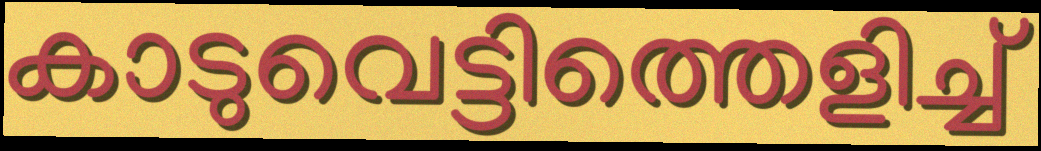
കാടുവെട്ടിത്തെളിച്ച്